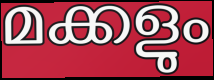
മക്കളും